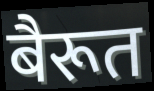
बैरूत